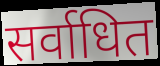
सर्वाधित